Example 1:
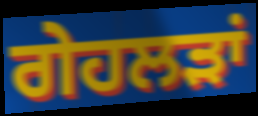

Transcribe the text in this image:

ਗੇਹਲੜਾਂ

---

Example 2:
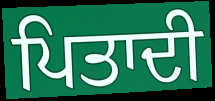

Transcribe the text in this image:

ਪਿਤਾਦੀ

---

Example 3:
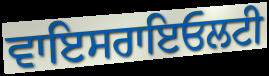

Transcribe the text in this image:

ਵਾਇਸਰਾਇਓਲਟੀ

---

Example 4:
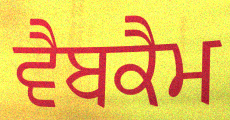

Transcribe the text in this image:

ਵੈਬਕੈਮ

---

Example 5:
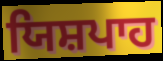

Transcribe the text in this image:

ਯਿਸ਼ਪਾਹ